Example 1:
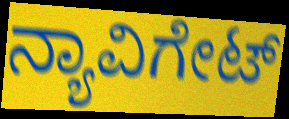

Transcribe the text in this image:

ನ್ಯಾವಿಗೇಟ್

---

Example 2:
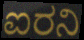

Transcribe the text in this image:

ಐರನಿ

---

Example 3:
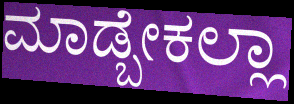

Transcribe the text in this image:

ಮಾಡ್ಬೇಕಲ್ಲಾ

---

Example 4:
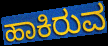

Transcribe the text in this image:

ಹಾಕಿರುವ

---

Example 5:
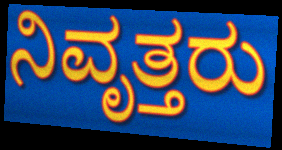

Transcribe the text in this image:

ನಿವೃತ್ತರು